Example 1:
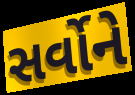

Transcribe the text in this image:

સર્વોને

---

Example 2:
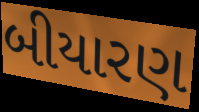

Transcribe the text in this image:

બીયારણ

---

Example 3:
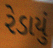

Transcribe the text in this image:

રેડાયું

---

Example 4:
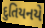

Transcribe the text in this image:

દુતિયનયે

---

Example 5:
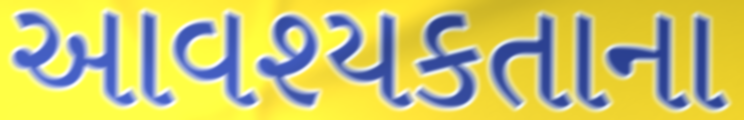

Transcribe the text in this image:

આવશ્યકતાના